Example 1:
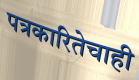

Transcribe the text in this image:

पत्रकारितेचाही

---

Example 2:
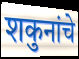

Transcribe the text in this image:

शकुनांचे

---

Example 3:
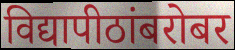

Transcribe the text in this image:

विद्यापीठांबरोबर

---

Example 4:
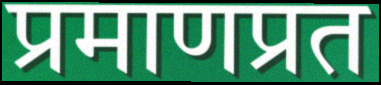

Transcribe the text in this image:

प्रमाणप्रत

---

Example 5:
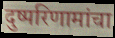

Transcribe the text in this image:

दुष्परिणामांचा